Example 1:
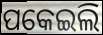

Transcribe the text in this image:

ପକେଇଲି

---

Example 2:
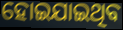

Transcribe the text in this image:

ହୋଇଯାଇଥିବ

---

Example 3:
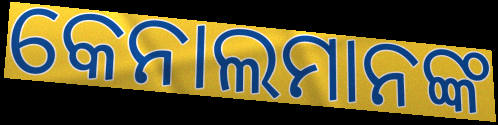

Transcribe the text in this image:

କେନାଲମାନଙ୍କ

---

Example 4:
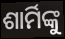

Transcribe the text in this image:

ଶାର୍ମିଙ୍କୁ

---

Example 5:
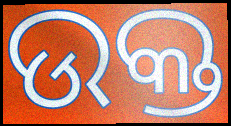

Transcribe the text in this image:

ଉକ୍ତ